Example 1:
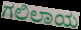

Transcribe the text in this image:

ಗಲಿಲಾಯ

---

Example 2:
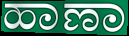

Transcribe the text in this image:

ಹಾಣಾ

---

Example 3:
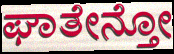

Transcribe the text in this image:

ಘಾತೇನ್ತೋ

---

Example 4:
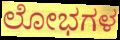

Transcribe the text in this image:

ಲೋಭಗಳ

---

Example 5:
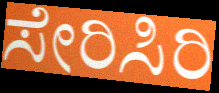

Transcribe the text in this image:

ಸೇರಿಸಿರಿ